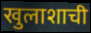
खुलाशाची